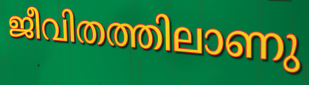
ജീവിതത്തിലാണു